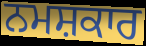
ਨਮਸ਼ਕਾਰ